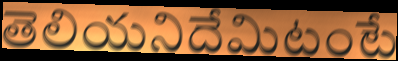
తెలియనిదేమిటంటే